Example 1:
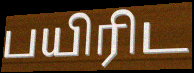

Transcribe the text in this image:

பயிரிட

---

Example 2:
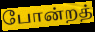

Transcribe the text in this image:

போன்றத்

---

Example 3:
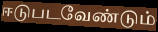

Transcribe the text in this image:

ஈடுபடவேண்டும்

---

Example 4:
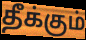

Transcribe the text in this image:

தீக்கும்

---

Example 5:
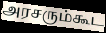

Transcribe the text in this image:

அரசரும்கூட